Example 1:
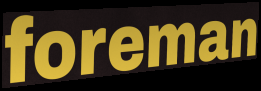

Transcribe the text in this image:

foreman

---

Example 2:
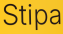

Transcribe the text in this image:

Stipa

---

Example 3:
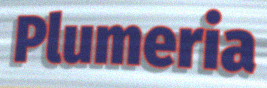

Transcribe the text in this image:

Plumeria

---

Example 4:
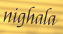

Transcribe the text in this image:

nighala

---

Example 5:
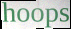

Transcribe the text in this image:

hoops